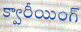
క్వారీయింగ్